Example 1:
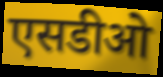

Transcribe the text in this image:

एसडीओ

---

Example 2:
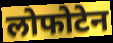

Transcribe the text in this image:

लोफोटेन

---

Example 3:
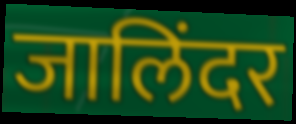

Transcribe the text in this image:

जालिंदर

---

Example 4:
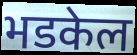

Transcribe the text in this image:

भडकेल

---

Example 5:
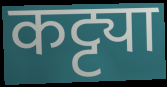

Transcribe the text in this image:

कट्ट्या